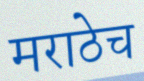
मराठेच